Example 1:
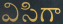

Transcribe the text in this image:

విసిగా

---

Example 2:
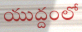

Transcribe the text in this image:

యుద్దంలో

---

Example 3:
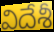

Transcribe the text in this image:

విదేశీ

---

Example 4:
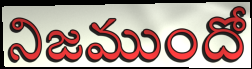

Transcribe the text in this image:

నిజముందో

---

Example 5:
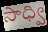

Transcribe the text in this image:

సాధ్వి